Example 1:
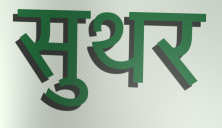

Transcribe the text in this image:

सुथर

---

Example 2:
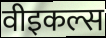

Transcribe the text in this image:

वीइकल्स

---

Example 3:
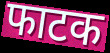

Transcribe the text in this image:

फाटक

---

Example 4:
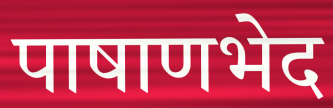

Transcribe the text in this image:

पाषाणभेद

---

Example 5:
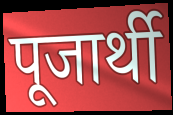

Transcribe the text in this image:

पूजार्थी